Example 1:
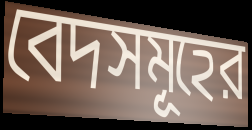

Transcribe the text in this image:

বেদসমূহের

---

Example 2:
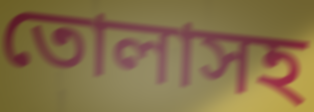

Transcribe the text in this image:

তোলাসহ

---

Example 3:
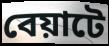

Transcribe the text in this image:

বেয়াটে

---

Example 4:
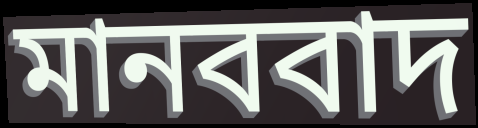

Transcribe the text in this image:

মানববাদ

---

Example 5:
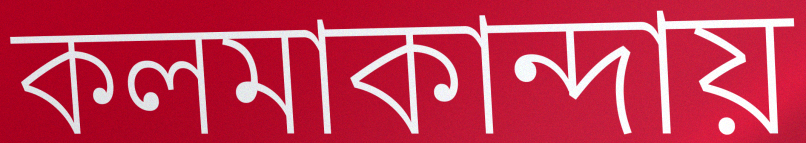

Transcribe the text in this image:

কলমাকান্দায়